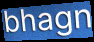
bhagn